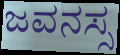
ಜವನಸ್ಸ